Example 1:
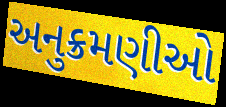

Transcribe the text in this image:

અનુક્રમણીઓ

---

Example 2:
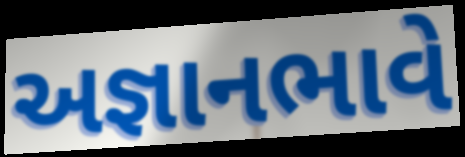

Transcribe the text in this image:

અજ્ઞાનભાવે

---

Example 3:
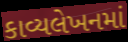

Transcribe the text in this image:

કાવ્યલેખનમાં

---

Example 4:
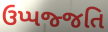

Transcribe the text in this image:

ઉપ્પજ્જતિ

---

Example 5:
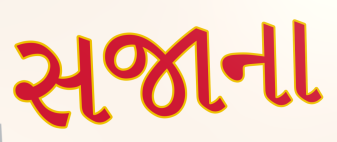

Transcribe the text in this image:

સજાના